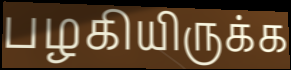
பழகியிருக்க